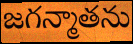
జగన్మాతను